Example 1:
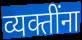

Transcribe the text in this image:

व्यक्तींना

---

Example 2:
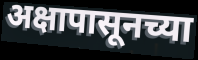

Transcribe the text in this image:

अक्षापासूनच्या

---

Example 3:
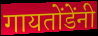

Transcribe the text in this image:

गायतोंडेंनी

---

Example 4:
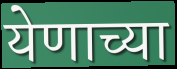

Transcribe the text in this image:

येणाच्या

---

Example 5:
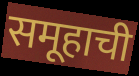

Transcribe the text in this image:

समूहाची